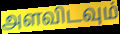
அளவிடவும்